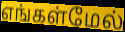
எங்கள்மேல்